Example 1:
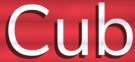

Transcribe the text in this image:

Cub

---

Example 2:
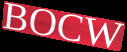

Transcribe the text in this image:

BOCW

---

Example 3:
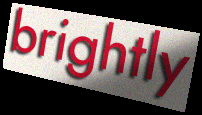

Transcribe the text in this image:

brightly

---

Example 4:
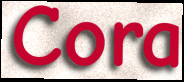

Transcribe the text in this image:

Cora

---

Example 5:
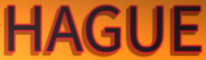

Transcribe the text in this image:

HAGUE